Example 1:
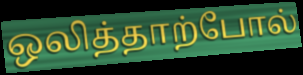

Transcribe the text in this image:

ஒலித்தாற்போல்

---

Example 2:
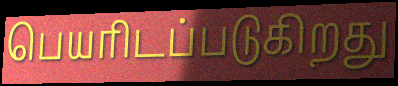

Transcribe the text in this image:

பெயரிடப்படுகிறது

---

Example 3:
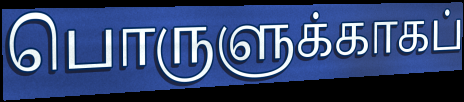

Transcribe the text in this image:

பொருளுக்காகப்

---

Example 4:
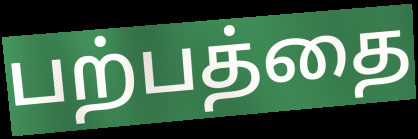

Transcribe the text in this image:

பற்பத்தை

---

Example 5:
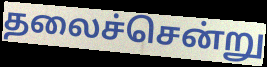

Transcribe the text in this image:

தலைச்சென்று